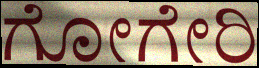
ಗೋಗೇರಿ